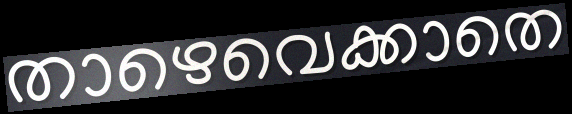
താഴെവെക്കാതെ